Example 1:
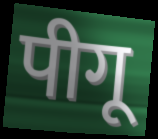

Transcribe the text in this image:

पीगू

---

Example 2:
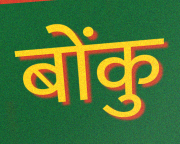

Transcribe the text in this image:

बोंकु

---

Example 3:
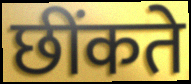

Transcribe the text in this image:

छींकते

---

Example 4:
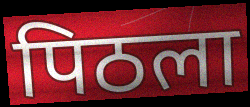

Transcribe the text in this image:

पिठला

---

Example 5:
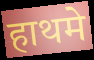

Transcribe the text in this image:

हाथमे